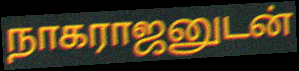
நாகராஜனுடன்